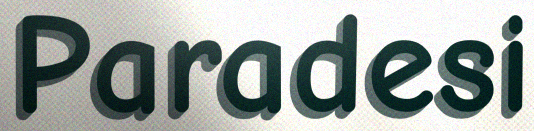
Paradesi